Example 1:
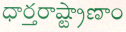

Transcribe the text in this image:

ధార్తరాష్ట్రాణాం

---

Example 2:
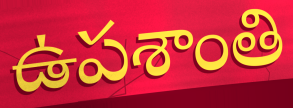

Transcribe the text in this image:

ఉపశాంతి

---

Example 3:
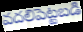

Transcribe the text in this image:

వదలిపెట్టబడి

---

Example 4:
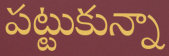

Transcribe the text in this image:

పట్టుకున్నా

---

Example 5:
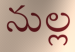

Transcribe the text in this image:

నుల్ల